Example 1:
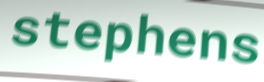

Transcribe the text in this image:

stephens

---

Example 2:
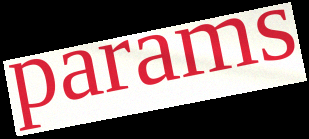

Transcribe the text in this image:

params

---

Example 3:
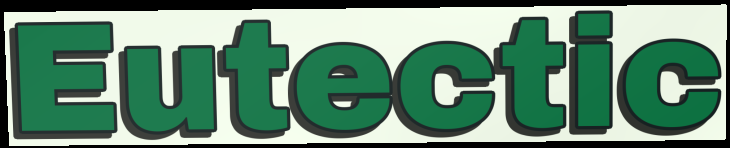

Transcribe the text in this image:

Eutectic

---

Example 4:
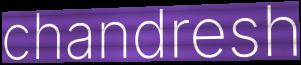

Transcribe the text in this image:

chandresh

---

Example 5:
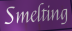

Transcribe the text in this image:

Smelting